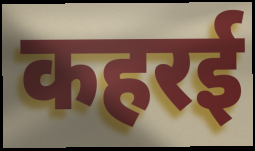
कहरई